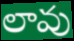
లావు